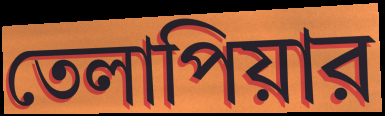
তেলাপিয়ার